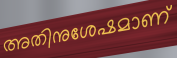
അതിനുശേഷമാണ്